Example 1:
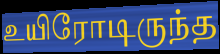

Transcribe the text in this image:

உயிரோடிருந்த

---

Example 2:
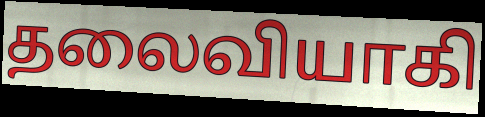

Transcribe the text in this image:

தலைவியாகி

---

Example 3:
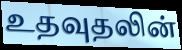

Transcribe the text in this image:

உதவுதலின்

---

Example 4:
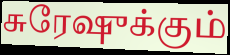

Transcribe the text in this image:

சுரேஷுக்கும்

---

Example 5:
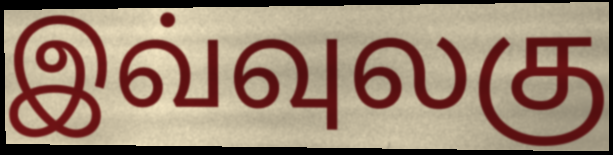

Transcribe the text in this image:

இவ்வுலகு